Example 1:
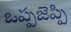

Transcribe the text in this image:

ఒప్పజెప్పి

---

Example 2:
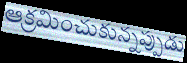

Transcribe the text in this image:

ఆక్రమించుకున్నప్పుడు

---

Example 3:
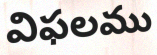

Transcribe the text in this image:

విఫలము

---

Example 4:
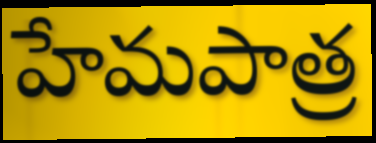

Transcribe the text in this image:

హేమపాత్ర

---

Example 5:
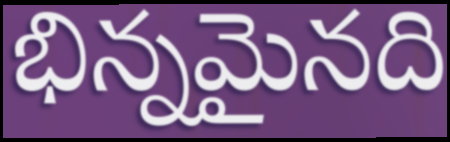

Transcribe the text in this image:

భిన్నమైనది